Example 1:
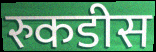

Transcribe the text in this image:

रुकडीस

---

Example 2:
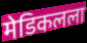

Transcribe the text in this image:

मेडिकलला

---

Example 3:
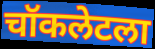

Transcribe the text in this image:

चॉकलेटला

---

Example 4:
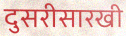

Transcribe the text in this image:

दुसरीसारखी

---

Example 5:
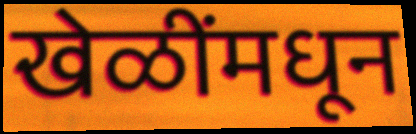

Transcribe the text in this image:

खेळींमधून